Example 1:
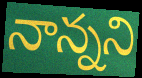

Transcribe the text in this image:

నాన్నని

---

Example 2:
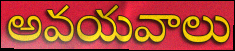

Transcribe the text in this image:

అవయవాలు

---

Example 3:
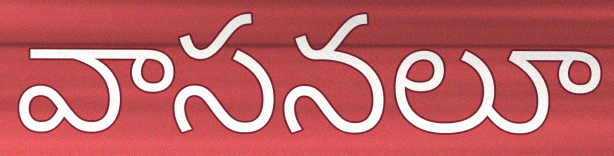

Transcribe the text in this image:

వాసనలూ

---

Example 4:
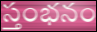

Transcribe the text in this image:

స్తంభనం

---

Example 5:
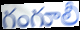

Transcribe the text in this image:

గంగూలీ